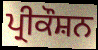
ਪ੍ਰੀਕੌਸ਼ਨ